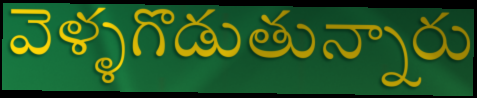
వెళ్ళగొడుతున్నారు